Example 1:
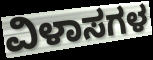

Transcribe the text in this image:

ವಿಳಾಸಗಳ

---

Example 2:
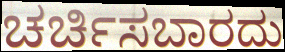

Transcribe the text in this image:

ಚರ್ಚಿಸಬಾರದು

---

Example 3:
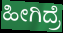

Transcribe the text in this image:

ಹೀಗಿದ್ರೆ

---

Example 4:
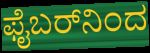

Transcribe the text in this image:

ಫೈಬರ್‌ನಿಂದ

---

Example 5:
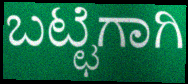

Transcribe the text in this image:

ಬಟ್ಟೆಗಾಗಿ